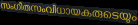
സംഗീതസംവിധായകരുടെയും